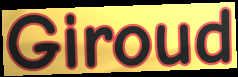
Giroud